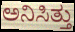
ಅನಿಸಿತ್ತು